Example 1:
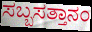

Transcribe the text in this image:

ಸಬ್ಬಸತ್ತಾನಂ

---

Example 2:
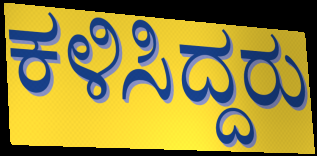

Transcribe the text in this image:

ಕಳಿಸಿದ್ದರು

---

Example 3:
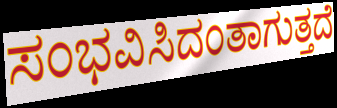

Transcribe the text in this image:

ಸಂಭವಿಸಿದಂತಾಗುತ್ತದೆ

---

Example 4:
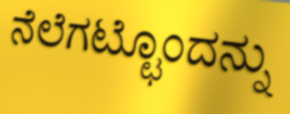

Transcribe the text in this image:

ನೆಲೆಗಟ್ಟೊಂದನ್ನು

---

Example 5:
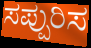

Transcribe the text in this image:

ಸಪ್ಪುರಿಸ